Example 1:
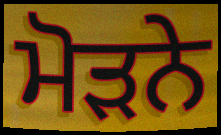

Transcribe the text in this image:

ਮੋੜਨੇ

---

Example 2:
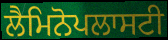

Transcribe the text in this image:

ਲੈਮਿਨੋਪਲਾਸਟੀ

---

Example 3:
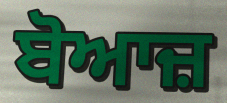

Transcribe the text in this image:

ਬੋਆਜ਼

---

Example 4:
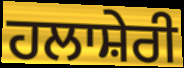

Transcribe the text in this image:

ਹਲਾਸ਼ੇਰੀ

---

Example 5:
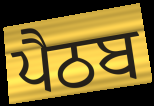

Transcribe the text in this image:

ਪੈਠਬ